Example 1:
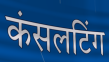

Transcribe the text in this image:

कंसलटिंग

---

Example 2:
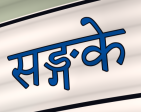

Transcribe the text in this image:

सङ्गके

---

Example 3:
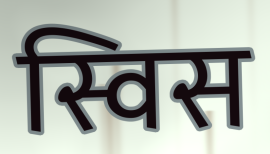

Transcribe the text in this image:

स्विस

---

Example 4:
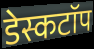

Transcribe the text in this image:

डेस्‍कटॉप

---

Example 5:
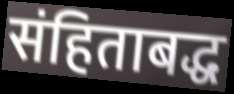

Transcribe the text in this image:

संहिताबद्ध